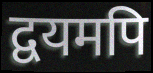
द्वयमपि